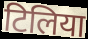
टिलिया